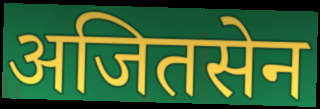
अजितसेन